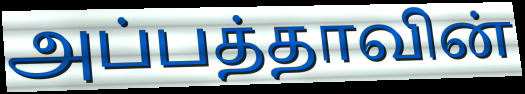
அப்பத்தாவின்